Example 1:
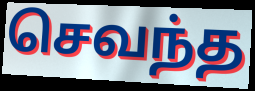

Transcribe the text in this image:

செவந்த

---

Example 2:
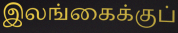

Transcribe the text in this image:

இலங்கைக்குப்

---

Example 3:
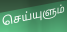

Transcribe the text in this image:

செய்யுளும்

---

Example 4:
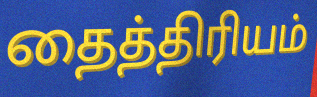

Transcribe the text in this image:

தைத்திரியம்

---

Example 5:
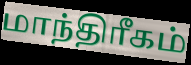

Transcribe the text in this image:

மாந்திரீகம்